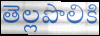
తెల్లపొలికి